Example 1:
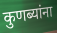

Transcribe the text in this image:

कुणब्यांना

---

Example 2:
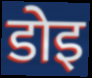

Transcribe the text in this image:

डोइ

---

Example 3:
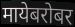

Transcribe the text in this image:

मायेबरोबर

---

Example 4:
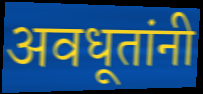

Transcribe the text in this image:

अवधूतांनी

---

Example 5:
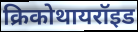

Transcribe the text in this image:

क्रिकोथायरॉइड